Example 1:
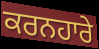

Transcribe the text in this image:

ਕਰਨਹਾਰੇ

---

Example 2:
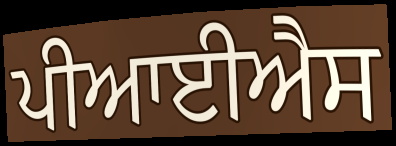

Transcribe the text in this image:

ਪੀਆਈਐਸ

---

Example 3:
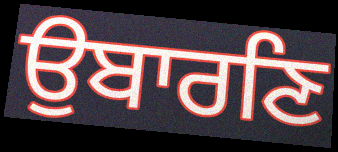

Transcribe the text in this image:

ਉਬਾਰਣਿ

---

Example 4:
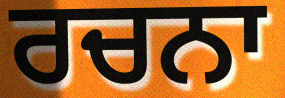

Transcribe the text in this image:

ਰਚਨਾ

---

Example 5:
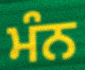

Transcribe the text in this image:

ਮੰਨ